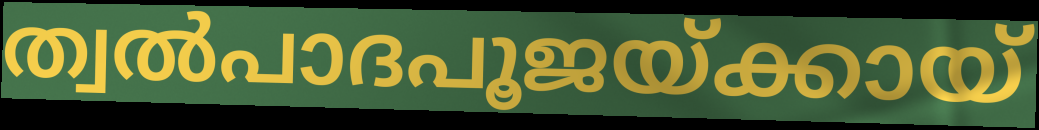
ത്വൽപാദപൂജയ്ക്കായ്